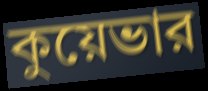
কুয়েভার